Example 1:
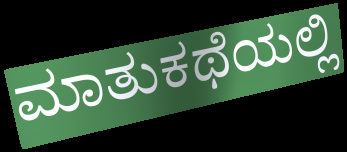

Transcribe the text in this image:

ಮಾತುಕಥೆಯಲ್ಲಿ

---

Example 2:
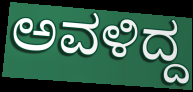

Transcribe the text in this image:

ಅವಳಿದ್ದ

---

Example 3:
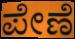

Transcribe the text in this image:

ಪೇಣೆ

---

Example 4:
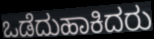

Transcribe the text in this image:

ಒಡೆದುಹಾಕಿದರು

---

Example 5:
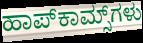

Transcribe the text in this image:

ಹಾಪ್‌ಕಾಮ್ಸ್‌ಗಳು